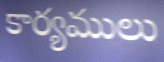
కార్యములు